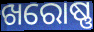
ଖରୋଷ୍ଣ